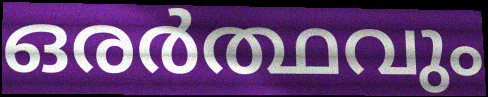
ഒരർത്ഥവും